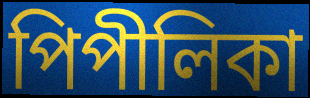
পিপীলিকা